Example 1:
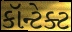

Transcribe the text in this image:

કૉન્ટેક્ટ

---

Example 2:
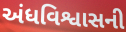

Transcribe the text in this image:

અંધવિશ્વાસની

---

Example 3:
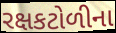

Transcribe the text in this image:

રક્ષકટોળીના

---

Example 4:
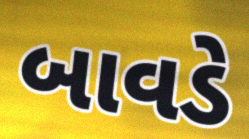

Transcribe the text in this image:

બાવડે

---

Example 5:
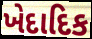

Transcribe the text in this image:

ખેદાદિક